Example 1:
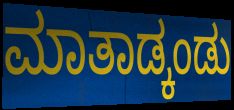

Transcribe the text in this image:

ಮಾತಾಡ್ಕಂಡು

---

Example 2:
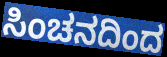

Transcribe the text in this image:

ಸಿಂಚನದಿಂದ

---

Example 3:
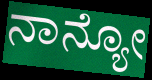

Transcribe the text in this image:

ನಾನ್ಯೋ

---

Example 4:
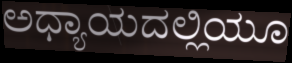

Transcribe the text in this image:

ಅಧ್ಯಾಯದಲ್ಲಿಯೂ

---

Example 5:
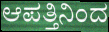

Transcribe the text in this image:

ಆಪತ್ತಿನಿಂದ